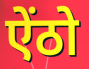
ऐंठो